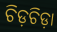
ଚିଡ଼ଚିଡ଼ା